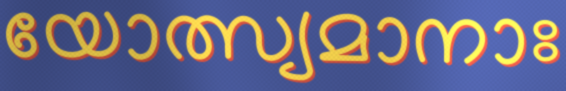
യോത്സ്യമാനാഃ